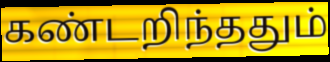
கண்டறிந்ததும்